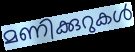
മണിക്കുറുകൾ